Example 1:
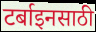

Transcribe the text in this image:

टर्बाइनसाठी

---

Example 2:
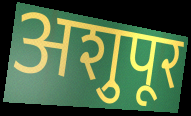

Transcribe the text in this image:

अश्रुपूर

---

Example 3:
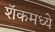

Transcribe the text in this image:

शॅकमध्ये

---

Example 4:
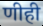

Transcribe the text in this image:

णीही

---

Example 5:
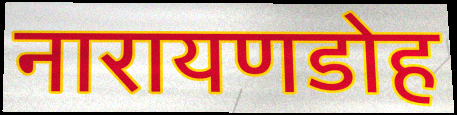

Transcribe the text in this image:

नारायणडोह